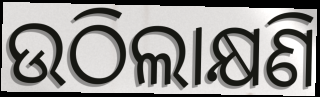
ଉଠିଲାକ୍ଷଣି